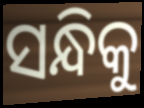
ସନ୍ଧିକୁ